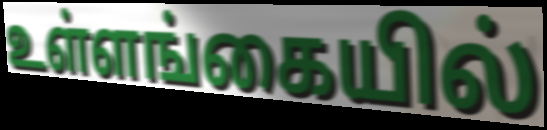
உள்ளங்கையில்